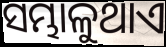
ସମ୍ଭାଳୁଥାଏ